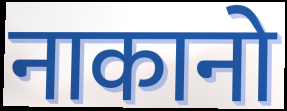
नाकानो